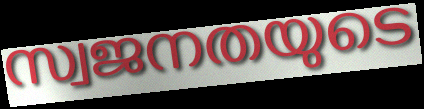
സ്വജനതയുടെ